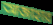
আজাহার